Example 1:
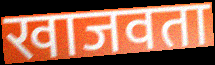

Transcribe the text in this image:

खाजवता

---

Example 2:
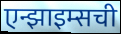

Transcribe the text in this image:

एन्झाइम्सची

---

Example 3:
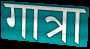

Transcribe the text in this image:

गात्रा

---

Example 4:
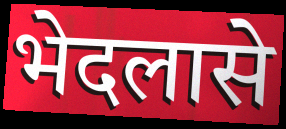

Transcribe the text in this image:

भेदलासे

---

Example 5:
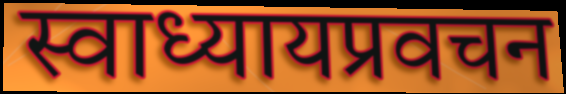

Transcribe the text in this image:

स्वाध्यायप्रवचन